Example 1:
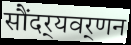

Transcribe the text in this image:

सौंदर्यवर्णन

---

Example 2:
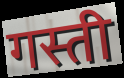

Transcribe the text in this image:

गस्ती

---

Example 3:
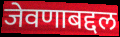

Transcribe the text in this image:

जेवणाबद्दल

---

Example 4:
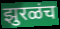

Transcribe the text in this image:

झुरळंच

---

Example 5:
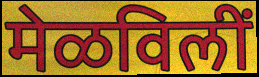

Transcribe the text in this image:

मेळविलीं